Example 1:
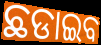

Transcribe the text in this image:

ଛଡାଇବ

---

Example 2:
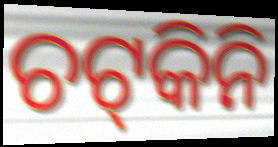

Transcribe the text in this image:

ଚଟ୍‍କିନି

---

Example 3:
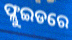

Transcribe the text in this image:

ଫ୍ଲୁଇଡରେ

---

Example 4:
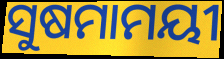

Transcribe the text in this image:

ସୁଷମାମୟୀ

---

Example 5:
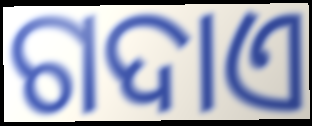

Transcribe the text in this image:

ଗଦାଏ